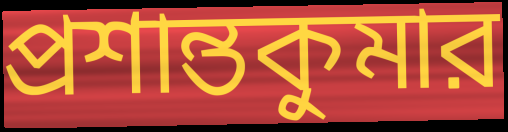
প্রশান্তকুমার